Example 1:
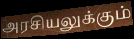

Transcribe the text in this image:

அரசியலுக்கும்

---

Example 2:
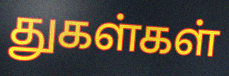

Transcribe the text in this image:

துகள்கள்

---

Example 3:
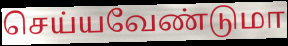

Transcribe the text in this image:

செய்யவேண்டுமா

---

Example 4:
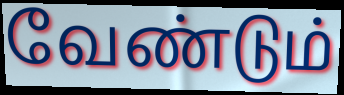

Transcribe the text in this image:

வேண்டும்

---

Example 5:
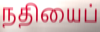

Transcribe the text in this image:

நதியைப்